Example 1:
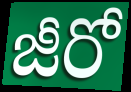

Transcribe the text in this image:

జీరో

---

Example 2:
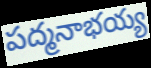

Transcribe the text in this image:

పద్మనాభయ్య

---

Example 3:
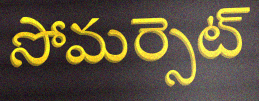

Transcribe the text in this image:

సోమర్సెట్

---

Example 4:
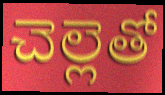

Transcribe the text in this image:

చెల్లెతో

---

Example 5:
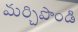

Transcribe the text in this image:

మర్చిపొండి